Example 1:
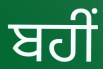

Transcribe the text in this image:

ਬਹੀਂ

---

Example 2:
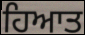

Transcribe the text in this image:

ਹਿਆਤ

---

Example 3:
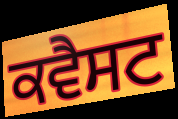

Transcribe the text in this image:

ਕਵੈਸਟ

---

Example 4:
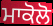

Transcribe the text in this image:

ਮਾਕੋਲੋ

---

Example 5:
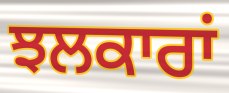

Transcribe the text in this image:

ਝਲਕਾਰਾਂ